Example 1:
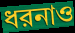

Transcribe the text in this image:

ধরনাও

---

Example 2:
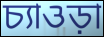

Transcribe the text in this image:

চ্যাওড়া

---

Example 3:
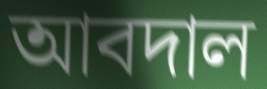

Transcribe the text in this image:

আবদাল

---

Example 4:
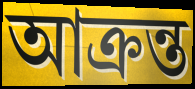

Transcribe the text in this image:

আক্রন্ত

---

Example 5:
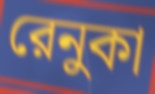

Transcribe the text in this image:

রেনুকা